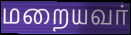
மறையவர்